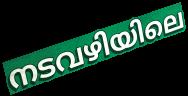
നടവഴിയിലെ